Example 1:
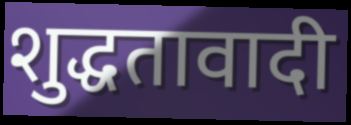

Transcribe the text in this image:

शुद्धतावादी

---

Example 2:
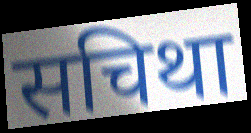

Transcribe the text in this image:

सचिथा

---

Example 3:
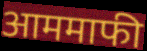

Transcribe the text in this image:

आममाफी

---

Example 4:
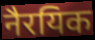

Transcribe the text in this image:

नैरयिक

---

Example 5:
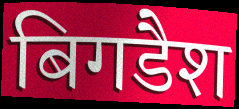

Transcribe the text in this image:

बिगडैश